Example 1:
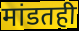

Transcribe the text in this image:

मांडतही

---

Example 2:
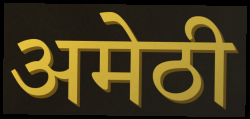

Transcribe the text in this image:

अमेठी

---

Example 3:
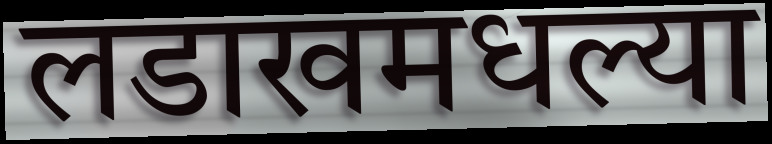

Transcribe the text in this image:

लडाखमधल्या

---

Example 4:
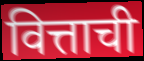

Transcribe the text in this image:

वित्ताची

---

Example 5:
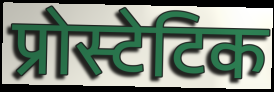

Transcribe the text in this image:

प्रोस्टेटिक